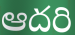
ఆదరి